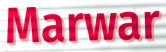
Marwar